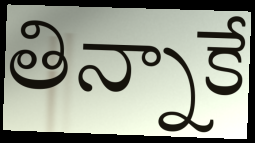
తిన్నాకే